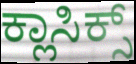
ಕ್ಲಾಸಿಕ್ಸ್